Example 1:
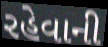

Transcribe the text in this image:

રહેવાની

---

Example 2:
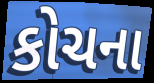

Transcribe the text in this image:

કોચના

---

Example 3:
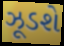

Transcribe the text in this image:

ઝૂડશે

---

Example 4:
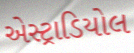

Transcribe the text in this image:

એસ્ટ્રાડિયોલ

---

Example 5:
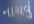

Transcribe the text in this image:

નાચવું